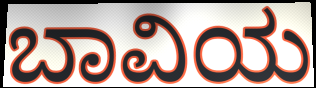
ಬಾವಿಯ